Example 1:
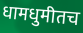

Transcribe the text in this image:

धामधुमीतच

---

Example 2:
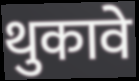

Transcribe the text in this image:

थुकावे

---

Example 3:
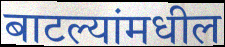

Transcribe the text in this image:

बाटल्यांमधील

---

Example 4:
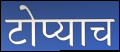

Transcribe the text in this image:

टोप्याच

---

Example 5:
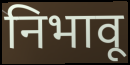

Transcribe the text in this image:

निभावू